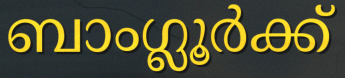
ബാംഗ്ലൂർക്ക്